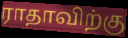
ராதாவிற்கு